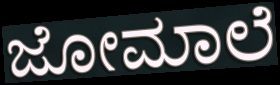
ಜೋಮಾಲೆ